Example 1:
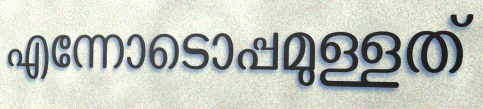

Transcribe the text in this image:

എന്നോടൊപ്പമുള്ളത്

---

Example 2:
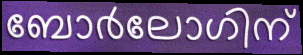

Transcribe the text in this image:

ബോർലോഗിന്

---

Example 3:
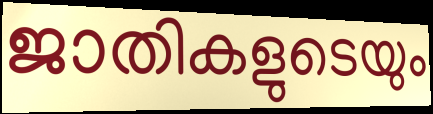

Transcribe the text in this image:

ജാതികളുടെയും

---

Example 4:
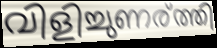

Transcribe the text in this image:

വിളിച്ചുണര്ത്തി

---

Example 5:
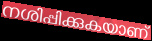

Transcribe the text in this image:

നശിപ്പിക്കുകയാണ്